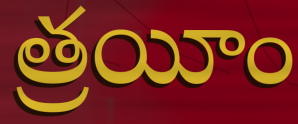
త్రయీం